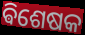
ଵିଶେଷକ